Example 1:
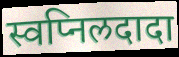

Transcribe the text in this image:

स्वप्निलदादा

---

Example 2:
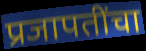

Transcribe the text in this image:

प्रजापतींचा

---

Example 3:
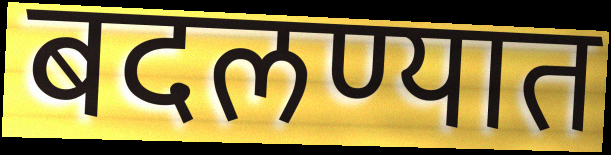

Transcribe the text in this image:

बदलण्यात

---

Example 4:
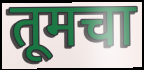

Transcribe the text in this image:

तूमचा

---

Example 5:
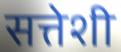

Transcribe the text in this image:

सत्तेशी